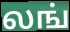
லங்